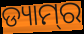
ଡ୍ୟାମ୍‍ର